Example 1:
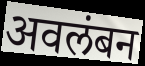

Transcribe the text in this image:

अवलंबन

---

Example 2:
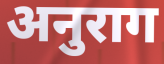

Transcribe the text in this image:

अनुराग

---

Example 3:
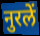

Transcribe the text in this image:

नुरलें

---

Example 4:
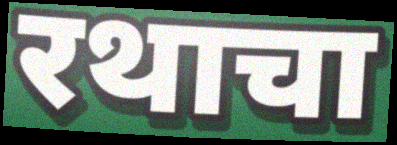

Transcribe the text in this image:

रथाचा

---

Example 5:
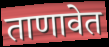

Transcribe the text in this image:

ताणावेत